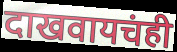
दाखवायचंही